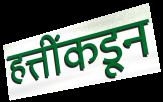
हत्तींकडून